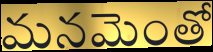
మనమెంతో